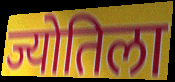
ज्योतिला